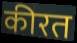
कीरत